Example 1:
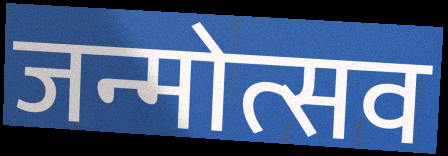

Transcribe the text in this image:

जन्मोत्सव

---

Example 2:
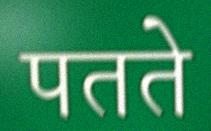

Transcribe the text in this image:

पतते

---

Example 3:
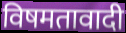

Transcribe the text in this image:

विषमतावादी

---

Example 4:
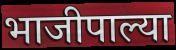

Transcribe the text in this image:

भाजीपाल्या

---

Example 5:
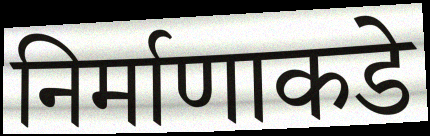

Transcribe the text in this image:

निर्माणाकडे